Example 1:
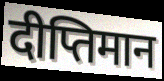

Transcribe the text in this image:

दीप्तिमान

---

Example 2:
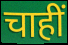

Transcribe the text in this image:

चाहीं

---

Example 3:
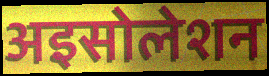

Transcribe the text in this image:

अइसोलेशन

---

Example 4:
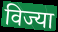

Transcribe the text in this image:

विज्या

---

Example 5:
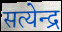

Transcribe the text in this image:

सत्येन्द्र